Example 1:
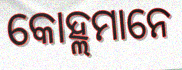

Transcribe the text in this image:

କୋହ୍ଲମାନେ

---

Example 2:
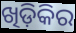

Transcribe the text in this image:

ଖିଡ଼ିକିର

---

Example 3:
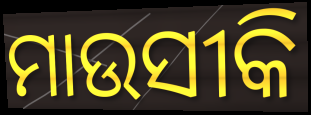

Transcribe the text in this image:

ମାଉସୀକି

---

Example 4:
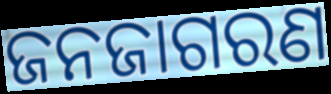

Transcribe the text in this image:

ଜନଜାଗରଣ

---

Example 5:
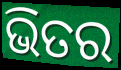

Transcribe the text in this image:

ଭିତର